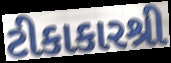
ટીકાકારશ્રી